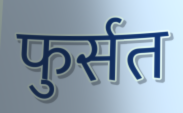
फुर्सत